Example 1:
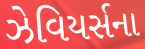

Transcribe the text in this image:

ઝેવિયર્સના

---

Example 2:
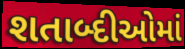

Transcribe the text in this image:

શતાબ્દીઓમાં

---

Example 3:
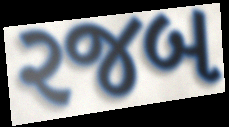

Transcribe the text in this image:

રજબ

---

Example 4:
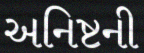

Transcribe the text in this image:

અનિષ્ટની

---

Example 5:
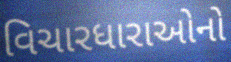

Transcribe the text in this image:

વિચારધારાઓનો